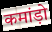
कमांड़ो